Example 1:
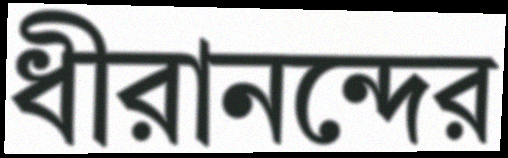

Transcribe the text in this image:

ধীরানন্দের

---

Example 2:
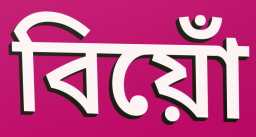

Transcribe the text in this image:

বিয়োঁ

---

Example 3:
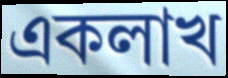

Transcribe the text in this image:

একলাখ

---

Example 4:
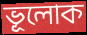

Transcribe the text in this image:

ভূলোক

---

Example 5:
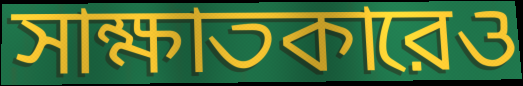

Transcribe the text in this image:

সাক্ষাতকারেও